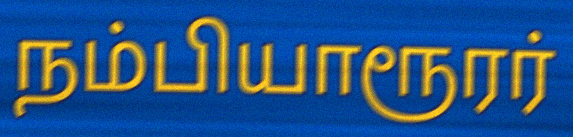
நம்பியாரூரர்